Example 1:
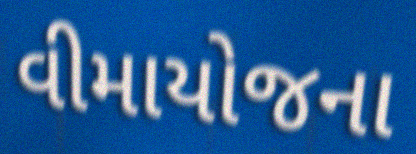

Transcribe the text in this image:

વીમાયોજના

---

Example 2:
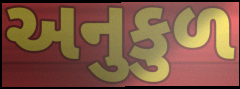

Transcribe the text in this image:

અનુકુળ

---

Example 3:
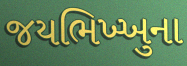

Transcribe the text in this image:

જયભિખ્ખુના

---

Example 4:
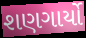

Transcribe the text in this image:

શણગાર્યો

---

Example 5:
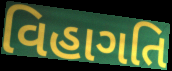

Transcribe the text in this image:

વિહાગતિ